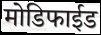
मोडिफाईड